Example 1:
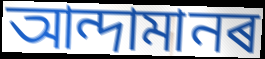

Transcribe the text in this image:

আন্দামানৰ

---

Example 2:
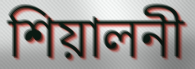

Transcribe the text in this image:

শিয়ালনী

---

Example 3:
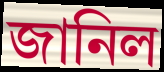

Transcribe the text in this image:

জানিল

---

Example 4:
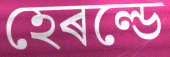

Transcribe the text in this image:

হেৰল্ডে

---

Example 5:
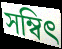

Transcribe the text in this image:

সম্বিৎ